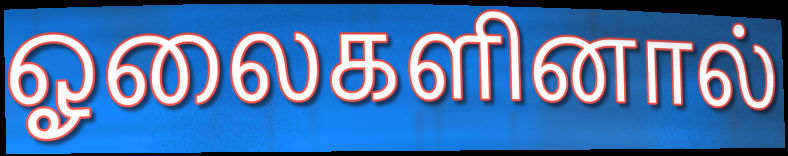
ஓலைகளினால்